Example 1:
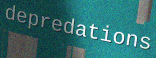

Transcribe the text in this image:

depredations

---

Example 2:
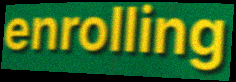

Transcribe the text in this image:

enrolling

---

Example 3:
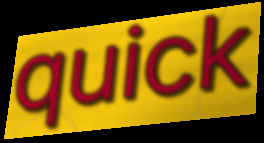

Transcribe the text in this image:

quick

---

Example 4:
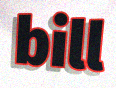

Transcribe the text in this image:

bill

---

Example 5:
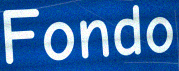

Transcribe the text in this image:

Fondo